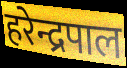
हरेन्द्रपाल